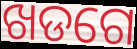
ଖଡଗେ